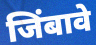
जिंबावे